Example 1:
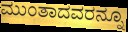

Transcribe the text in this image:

ಮುಂತಾದವರನ್ನೂ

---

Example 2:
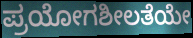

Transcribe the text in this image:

ಪ್ರಯೋಗಶೀಲತೆಯೇ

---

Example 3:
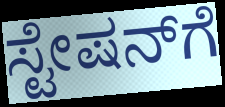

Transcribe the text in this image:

ಸ್ಟೇಷನ್‍ಗೆ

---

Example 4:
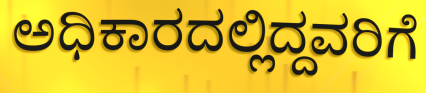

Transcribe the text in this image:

ಅಧಿಕಾರದಲ್ಲಿದ್ದವರಿಗೆ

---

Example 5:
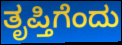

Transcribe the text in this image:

ತೃಪ್ತಿಗೆಂದು